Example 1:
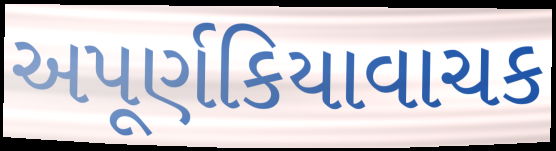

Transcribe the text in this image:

અપૂર્ણકિયાવાચક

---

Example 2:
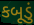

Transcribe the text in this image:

કબૂડું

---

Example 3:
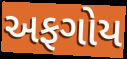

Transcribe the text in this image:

અફગોય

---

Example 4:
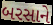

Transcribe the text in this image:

બરસાને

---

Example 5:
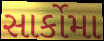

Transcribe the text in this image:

સાર્કોમા